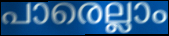
പാരെല്ലാം